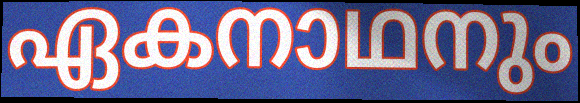
ഏകനാഥനും